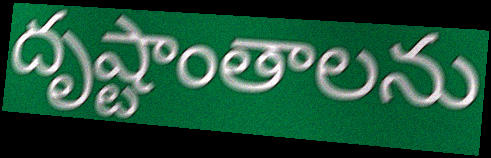
దృష్టాంతాలను